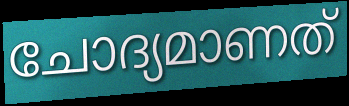
ചോദ്യമാണത്